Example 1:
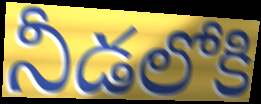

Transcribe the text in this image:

నీడలోకి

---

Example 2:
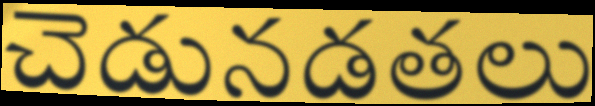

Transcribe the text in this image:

చెడునడతలు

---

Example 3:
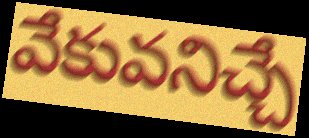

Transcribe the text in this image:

వేకువనిచ్చే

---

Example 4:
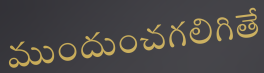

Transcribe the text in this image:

ముందుంచగలిగితే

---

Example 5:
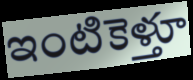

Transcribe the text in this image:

ఇంటికెళ్తూ